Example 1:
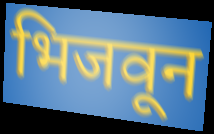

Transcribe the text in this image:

भिजवून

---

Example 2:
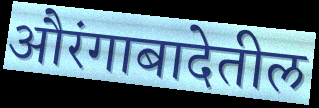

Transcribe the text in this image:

औरंगाबादेतील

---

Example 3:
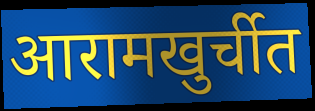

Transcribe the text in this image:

आरामखुर्चीत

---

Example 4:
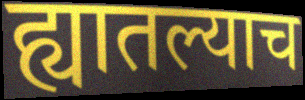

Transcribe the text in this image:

ह्यातल्याच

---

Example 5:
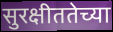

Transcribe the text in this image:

सुरक्षीततेच्या